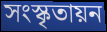
সংস্কৃতায়ন